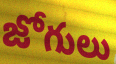
జోగులు